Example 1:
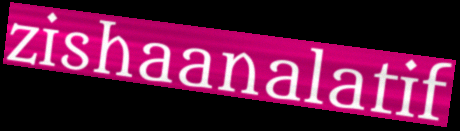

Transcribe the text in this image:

zishaanalatif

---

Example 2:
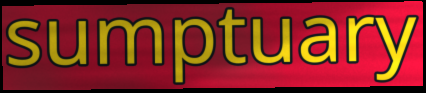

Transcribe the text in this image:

sumptuary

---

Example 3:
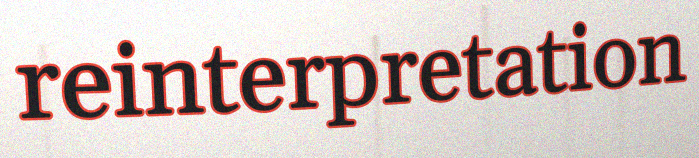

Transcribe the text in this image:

reinterpretation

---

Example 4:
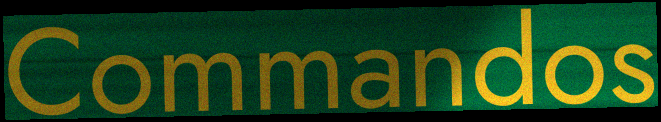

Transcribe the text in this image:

Commandos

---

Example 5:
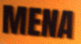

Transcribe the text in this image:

MENA